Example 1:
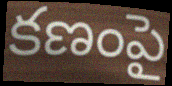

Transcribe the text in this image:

కణంపై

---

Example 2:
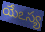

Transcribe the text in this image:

యేఽస్య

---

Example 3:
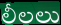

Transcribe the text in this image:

లీలలు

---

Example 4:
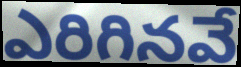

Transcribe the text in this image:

ఎరిగినవే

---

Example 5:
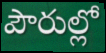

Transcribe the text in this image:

పౌరుల్లో